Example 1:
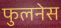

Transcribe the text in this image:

फुलनेस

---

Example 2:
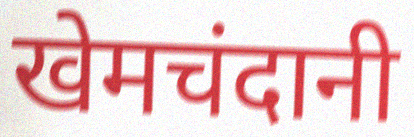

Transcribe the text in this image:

खेमचंदानी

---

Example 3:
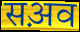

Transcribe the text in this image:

सअ़व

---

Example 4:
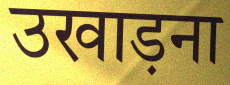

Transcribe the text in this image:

उखाड़ना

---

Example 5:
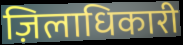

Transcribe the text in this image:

ज़िलाधिकारी